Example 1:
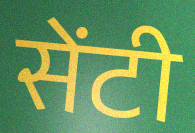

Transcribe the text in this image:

सेंटी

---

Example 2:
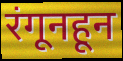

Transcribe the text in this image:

रंगूनहून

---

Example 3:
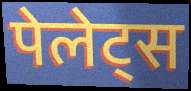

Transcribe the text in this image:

पेलेट्स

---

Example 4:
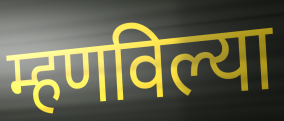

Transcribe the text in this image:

म्हणविल्या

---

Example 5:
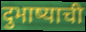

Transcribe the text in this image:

दुभाष्याची